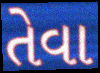
તેવા